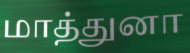
மாத்துனா